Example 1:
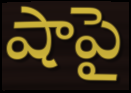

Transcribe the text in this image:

షాపై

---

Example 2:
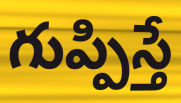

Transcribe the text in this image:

గుప్పిస్తే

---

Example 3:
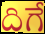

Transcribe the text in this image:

దిగే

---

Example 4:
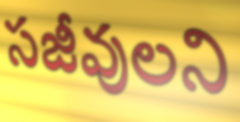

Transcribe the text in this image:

సజీవులని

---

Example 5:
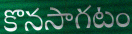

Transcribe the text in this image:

కొనసాగటం